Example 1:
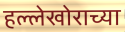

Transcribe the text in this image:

हल्लेखोराच्या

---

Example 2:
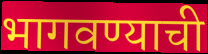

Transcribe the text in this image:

भागवण्याची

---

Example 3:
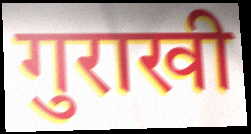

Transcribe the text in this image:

गुराखी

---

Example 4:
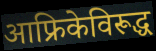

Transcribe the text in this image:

आफ्रिकेविरूद्ध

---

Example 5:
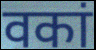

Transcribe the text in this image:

वकां